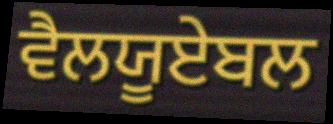
ਵੈਲਯੂਏਬਲ